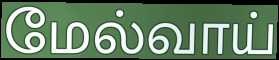
மேல்வாய்